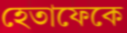
হেতাফেকে